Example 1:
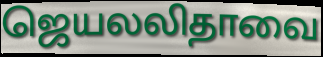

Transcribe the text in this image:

ஜெயலலிதாவை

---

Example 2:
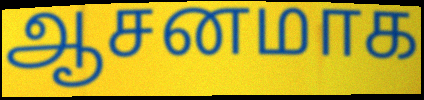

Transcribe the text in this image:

ஆசனமாக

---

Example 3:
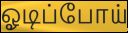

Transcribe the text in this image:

ஓடிப்போய்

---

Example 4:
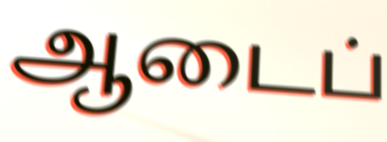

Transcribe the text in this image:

ஆடைப்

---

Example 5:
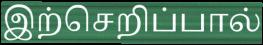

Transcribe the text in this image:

இற்செறிப்பால்